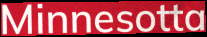
Minnesotta